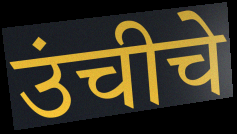
उंचीचे